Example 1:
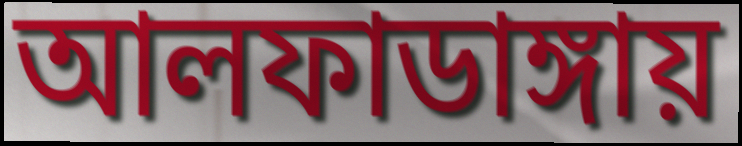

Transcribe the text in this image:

আলফাডাঙ্গায়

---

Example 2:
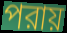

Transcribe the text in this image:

পরায়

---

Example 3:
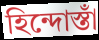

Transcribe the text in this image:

হিন্দোস্তাঁ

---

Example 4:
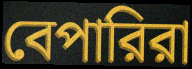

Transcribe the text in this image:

বেপারিরা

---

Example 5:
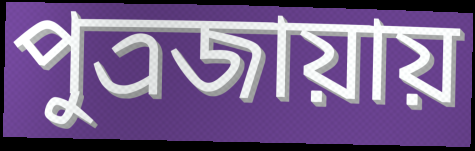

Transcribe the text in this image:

পুত্রজায়ায়